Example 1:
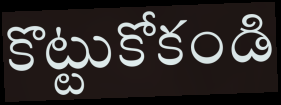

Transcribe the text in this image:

కొట్టుకోకండి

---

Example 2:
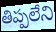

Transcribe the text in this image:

తిప్పలేని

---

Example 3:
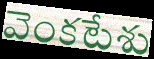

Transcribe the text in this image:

వెంకటేశు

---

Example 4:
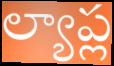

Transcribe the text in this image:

ల్యాప్ల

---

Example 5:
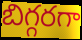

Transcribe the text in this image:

బిగ్గరగా